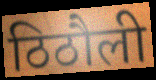
ठिठौली